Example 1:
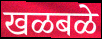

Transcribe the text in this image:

खळबळे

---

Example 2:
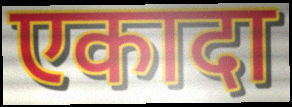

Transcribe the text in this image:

एकादा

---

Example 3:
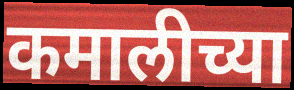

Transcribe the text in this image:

कमालीच्या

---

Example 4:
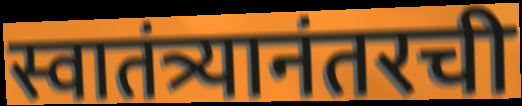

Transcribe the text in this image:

स्वातंत्र्यानंतरची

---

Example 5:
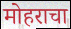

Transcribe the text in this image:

मोहराचा